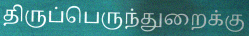
திருப்பெருந்துறைக்கு